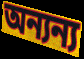
অন্যন্য